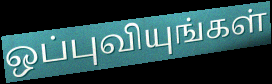
ஒப்புவியுங்கள்